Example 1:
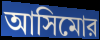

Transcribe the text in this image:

আসিমোর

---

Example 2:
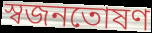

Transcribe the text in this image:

স্বজনতোষণ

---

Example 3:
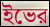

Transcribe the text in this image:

ইভের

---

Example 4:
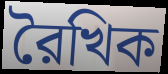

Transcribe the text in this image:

রৈখিক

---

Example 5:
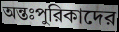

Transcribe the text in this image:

অন্তঃপুরিকাদের